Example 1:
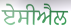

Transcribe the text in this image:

ਏਸੀਐਲ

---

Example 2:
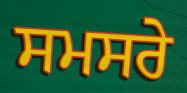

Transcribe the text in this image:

ਸਮਸਰੇ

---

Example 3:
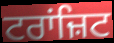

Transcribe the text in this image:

ਟਰਾਂਜ਼ਿਟ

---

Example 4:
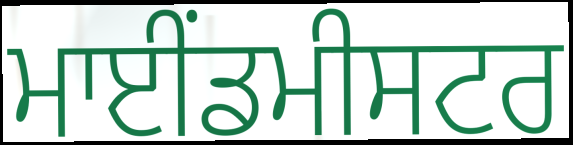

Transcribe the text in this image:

ਮਾਈਂਡਮੀਸਟਰ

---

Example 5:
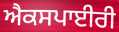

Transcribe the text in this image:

ਐਕਸਪਾਈਰੀ